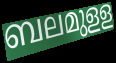
ബലമുളള